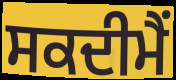
ਸਕਦੀਮੈਂ